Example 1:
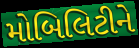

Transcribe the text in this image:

મોબિલિટીને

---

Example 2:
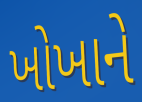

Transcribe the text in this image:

ખોખાને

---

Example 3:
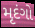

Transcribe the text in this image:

મૃદંગો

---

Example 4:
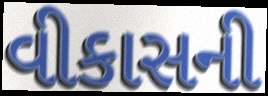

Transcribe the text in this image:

વીકાસની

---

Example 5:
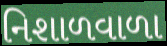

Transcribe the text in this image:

નિશાળવાળા